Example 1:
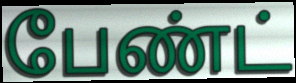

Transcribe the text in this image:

பேண்ட்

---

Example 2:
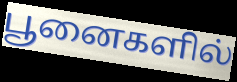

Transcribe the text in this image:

பூனைகளில்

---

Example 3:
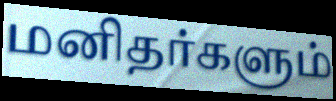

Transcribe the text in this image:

மனிதர்களும்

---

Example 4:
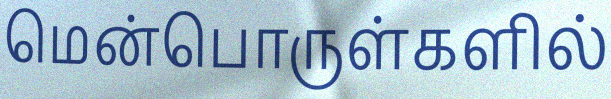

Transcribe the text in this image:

மென்பொருள்களில்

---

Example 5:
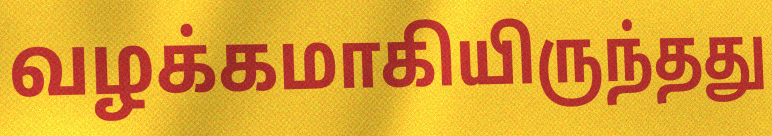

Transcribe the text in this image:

வழக்கமாகியிருந்தது